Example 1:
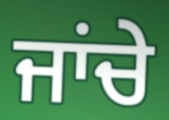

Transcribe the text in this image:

ਜਾਂਚੇ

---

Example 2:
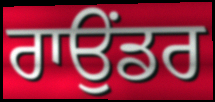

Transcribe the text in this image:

ਰਾਉਂਡਰ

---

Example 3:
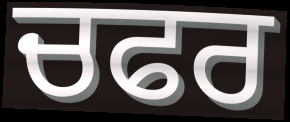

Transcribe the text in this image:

ਚਫਰ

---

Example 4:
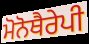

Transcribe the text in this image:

ਮੋਨੋਥੈਰੇਪੀ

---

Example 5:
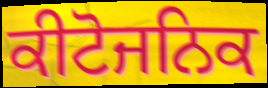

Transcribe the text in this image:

ਕੀਟੋਜਨਿਕ